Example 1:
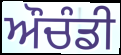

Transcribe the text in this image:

ਔਚੰਡੀ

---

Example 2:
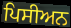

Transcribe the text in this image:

ਪਿਸੀਅਨ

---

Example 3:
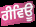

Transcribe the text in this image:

ਰੀਵਿਊ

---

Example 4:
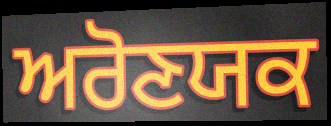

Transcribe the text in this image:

ਅਰੋਣਯਕ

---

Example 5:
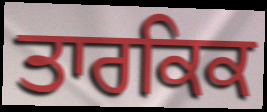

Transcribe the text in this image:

ਤਾਰਕਿਕ